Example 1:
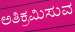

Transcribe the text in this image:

ಅತಿಕ್ರಮಿಸುವ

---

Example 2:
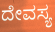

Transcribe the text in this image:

ದೇವಸ್ಯ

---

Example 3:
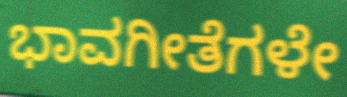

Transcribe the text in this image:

ಭಾವಗೀತೆಗಳೇ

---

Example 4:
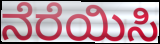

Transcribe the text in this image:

ನೆರೆಯಿಸಿ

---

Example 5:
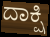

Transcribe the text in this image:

ದಾಕ್ಷಿ